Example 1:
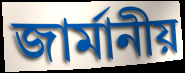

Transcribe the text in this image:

জাৰ্মানীয়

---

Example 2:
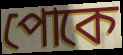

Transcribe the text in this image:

পোকে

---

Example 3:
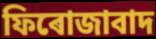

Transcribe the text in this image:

ফিৰোজাবাদ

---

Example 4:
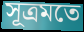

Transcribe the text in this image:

সূত্ৰমতে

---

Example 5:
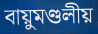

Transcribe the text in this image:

বায়ুমণ্ডলীয়